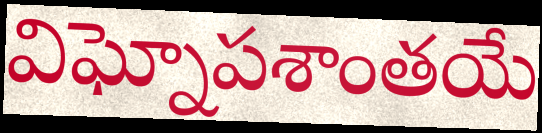
విఘ్నోపశాంతయే